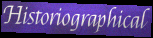
Historiographical